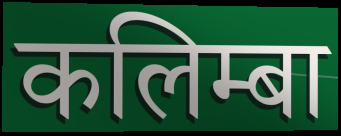
कलिम्बा